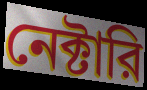
নেক্টারি